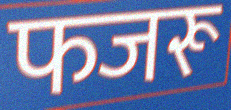
फजरू